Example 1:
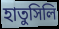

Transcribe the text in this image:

হাতুসিলি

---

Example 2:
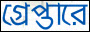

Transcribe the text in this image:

গ্রেপ্তারে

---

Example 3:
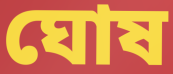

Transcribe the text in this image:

ঘোষ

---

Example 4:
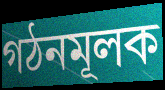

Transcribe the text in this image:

গঠনমূলক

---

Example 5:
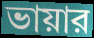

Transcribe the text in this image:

ভায়ার